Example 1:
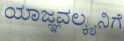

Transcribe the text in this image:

ಯಾಜ್ಞವಲ್ಕ್ಯನಿಗೆ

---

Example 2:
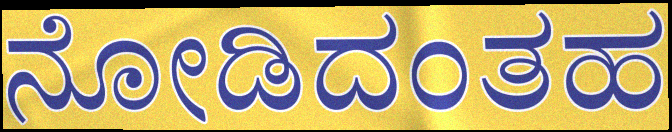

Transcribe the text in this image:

ನೋಡಿದಂತಹ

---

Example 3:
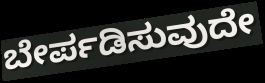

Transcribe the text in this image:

ಬೇರ್ಪಡಿಸುವುದೇ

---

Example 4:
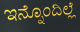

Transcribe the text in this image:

ಇನ್ನೊಂದಿಲ್ಲೆ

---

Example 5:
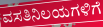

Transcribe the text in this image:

ವಸತಿನಿಲಯಗಳಿಗೆ